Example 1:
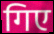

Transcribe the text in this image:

गिए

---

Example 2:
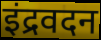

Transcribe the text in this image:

इंद्रवदन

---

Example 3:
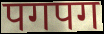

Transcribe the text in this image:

पगपग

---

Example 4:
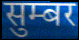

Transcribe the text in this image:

सुम्बर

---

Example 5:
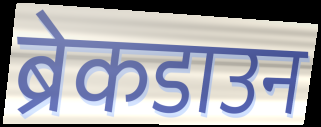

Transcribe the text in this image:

ब्रेकडाउन